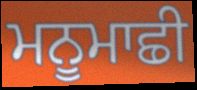
ਮਨੂਮਾਛੀ